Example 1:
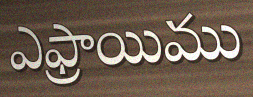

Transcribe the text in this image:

ఎఫ్రాయిము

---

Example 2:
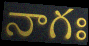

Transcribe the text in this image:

నాగః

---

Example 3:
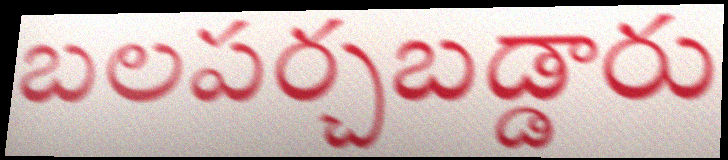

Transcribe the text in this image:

బలపర్చబడ్డారు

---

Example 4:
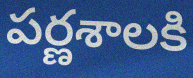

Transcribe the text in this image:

పర్ణశాలకి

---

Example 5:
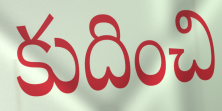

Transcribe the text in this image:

కుదించి